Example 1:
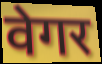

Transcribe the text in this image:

वेगर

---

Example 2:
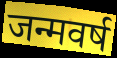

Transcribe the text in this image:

जन्मवर्ष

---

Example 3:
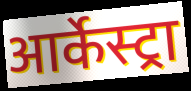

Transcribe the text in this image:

आर्केस्ट्रा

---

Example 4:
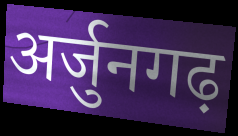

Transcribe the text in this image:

अर्जुनगढ़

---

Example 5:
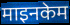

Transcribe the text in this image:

माइनकेम